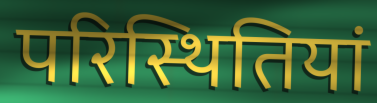
परिस्थितियां